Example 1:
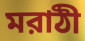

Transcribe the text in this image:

মরাঠী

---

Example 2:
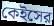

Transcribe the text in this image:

কেইসের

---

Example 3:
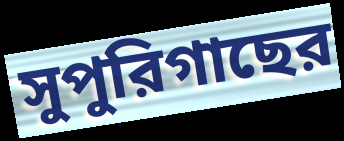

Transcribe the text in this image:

সুপুরিগাছের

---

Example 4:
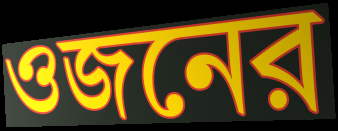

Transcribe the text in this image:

ওজনের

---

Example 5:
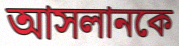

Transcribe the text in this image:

আসলানকে